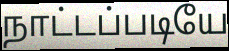
நாட்டப்படியே